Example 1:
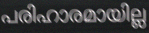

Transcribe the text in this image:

പരിഹാരമായില്ല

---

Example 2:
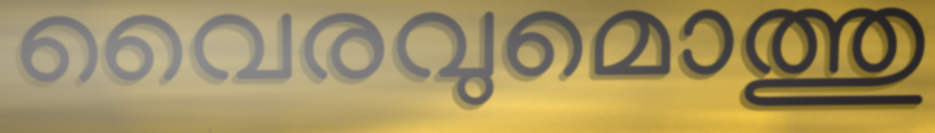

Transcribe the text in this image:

വൈരവുമൊത്തു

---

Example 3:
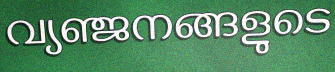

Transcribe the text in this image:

വ്യഞ്ജനങ്ങളുടെ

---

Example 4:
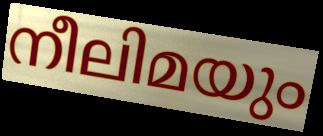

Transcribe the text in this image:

നീലിമയും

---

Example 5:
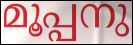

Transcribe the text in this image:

മൂപ്പനു